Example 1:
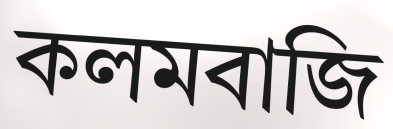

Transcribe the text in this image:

কলমবাজি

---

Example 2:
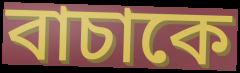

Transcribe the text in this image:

বাচাকে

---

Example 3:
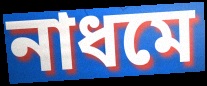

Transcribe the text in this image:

নাধমে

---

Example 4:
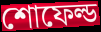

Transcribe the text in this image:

শোফেল্ড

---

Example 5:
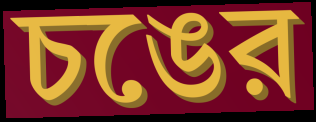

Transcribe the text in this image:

চঙের